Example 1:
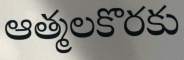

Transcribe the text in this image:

ఆత్మలకొరకు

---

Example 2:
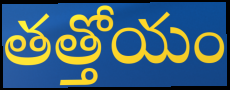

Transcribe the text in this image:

తత్తోయం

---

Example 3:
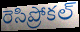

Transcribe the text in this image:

రెసిప్రోకల్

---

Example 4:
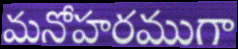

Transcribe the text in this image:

మనోహరముగా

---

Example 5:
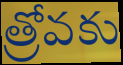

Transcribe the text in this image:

త్రోవకు